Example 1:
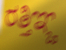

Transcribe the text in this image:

ರತ್ತಿಞ್ಚ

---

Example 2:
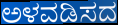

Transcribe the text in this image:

ಅಳವಡಿಸದ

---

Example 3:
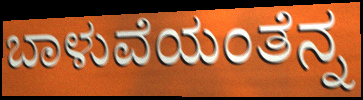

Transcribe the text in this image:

ಬಾಳುವೆಯಂತೆನ್ನ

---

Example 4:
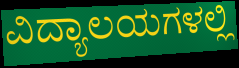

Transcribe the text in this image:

ವಿದ್ಯಾಲಯಗಳಲ್ಲಿ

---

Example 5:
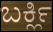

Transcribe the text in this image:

ಬರ್ಕ್ಲಿ